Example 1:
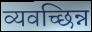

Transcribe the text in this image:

व्यवच्छिन्न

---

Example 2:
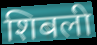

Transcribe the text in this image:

शिबली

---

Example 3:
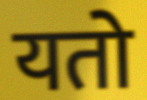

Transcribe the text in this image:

यतो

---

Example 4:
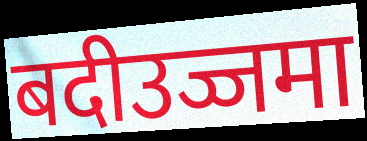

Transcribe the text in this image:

बदीउज्जमा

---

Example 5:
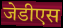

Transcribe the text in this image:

जेडीएस